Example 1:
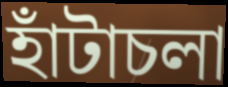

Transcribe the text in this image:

হাঁটাচলা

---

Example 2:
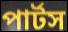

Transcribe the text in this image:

পার্টস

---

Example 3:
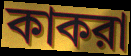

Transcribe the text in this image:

কাকরা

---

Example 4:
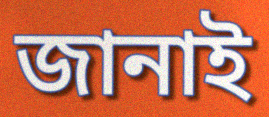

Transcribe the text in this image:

জানাই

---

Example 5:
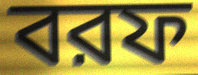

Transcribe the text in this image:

বরফ